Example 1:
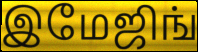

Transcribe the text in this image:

இமேஜிங்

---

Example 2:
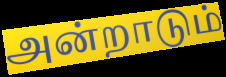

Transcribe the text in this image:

அன்றாடும்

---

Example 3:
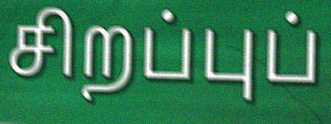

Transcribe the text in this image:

சிறப்புப்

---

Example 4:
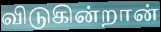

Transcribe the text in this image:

விடுகின்றான்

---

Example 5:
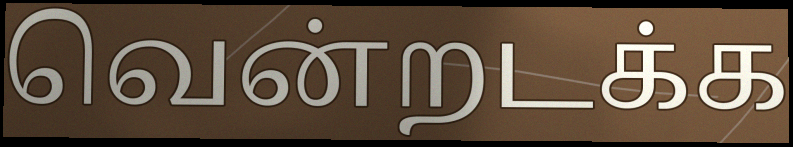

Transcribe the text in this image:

வென்றடக்க